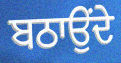
ਬਠਾਉਂਦੇ